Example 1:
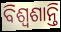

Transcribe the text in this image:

ବିଶ୍ୱଶାନ୍ତି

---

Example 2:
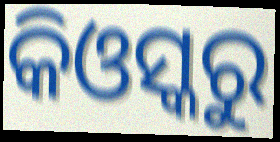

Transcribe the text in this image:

କିଓସ୍କରୁ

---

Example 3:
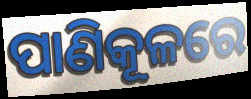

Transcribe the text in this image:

ପାଣିକୂଳରେ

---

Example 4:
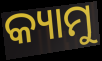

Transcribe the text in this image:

କ୍ୟାମୁ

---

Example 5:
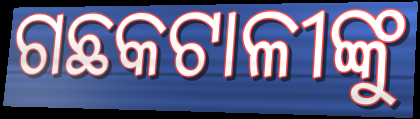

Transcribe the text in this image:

ଗଛକଟାଳୀଙ୍କୁ